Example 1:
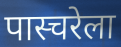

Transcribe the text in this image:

पास्चरेला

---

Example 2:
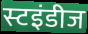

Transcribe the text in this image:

स्टइंडीज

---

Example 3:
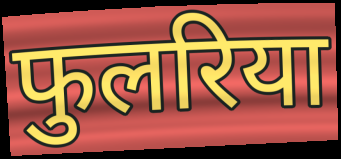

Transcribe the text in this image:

फुलरिया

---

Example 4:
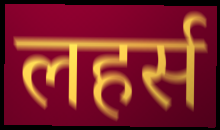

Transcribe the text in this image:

लहर्स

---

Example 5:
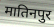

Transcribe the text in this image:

मातिनपुर